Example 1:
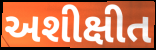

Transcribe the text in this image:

અશીક્ષીત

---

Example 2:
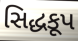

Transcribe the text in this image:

સિદ્ધકૂપ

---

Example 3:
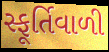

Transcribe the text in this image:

સ્ફૂર્તિવાળી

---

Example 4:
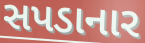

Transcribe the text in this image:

સપડાનાર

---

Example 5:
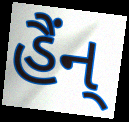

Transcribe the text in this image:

હૈંન્